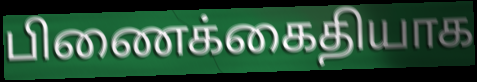
பிணைக்கைதியாக